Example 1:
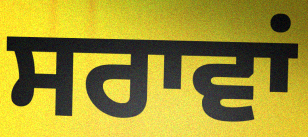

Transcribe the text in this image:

ਸਰਾਵਾਂ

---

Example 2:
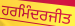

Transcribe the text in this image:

ਹਰਮਿੰਦਰਜੀਤ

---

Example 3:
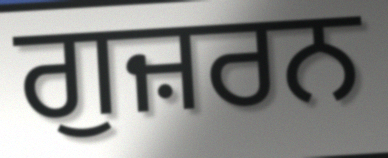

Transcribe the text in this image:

ਗੁਜ਼ਰਨ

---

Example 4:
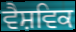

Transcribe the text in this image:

ਵੈਸ਼ਵਿਕ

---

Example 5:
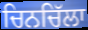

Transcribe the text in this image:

ਚਿਨਚਿੱਲਾ